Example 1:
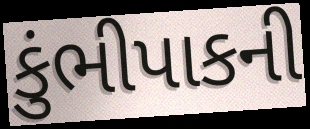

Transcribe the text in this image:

કુંભીપાકની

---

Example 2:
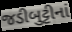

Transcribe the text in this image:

જડીબુટ્ટીનાં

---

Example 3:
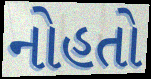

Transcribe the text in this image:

નોહતો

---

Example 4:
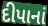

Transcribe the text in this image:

દીપાનાં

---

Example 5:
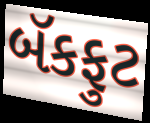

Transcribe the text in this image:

બૅકફુટ